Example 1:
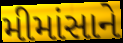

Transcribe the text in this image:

મીમાંસાને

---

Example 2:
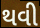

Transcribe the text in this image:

થવી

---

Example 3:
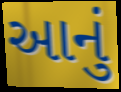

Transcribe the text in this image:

આનું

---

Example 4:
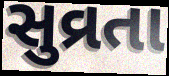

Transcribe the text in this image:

સુવ્રતા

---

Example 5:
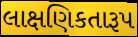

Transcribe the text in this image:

લાક્ષણિકતારૂપ